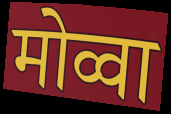
मोव्वा